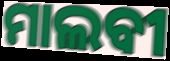
ମାଲବୀ